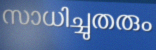
സാധിച്ചുതരും